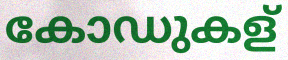
കോഡുകള്